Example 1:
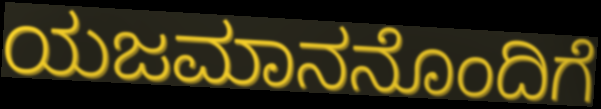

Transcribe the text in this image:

ಯಜಮಾನನೊಂದಿಗೆ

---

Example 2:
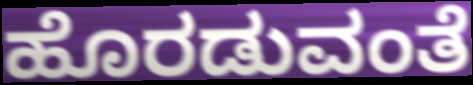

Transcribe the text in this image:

ಹೊರಡುವಂತೆ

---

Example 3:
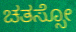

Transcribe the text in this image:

ಚತಸ್ಸೋ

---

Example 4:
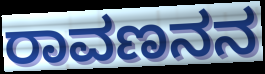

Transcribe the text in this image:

ರಾವಣನನ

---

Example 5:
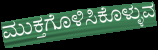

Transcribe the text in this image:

ಮುಕ್ತಗೊಳಿಸಿಕೊಳ್ಳುವ